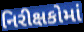
નિરીક્ષકોમાં